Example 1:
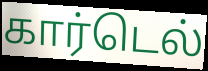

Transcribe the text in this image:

கார்டெல்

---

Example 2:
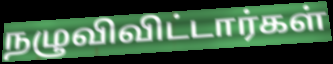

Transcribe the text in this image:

நழுவிவிட்டார்கள்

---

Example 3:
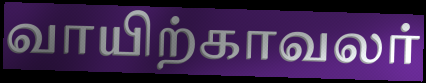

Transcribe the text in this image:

வாயிற்காவலர்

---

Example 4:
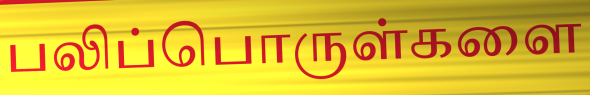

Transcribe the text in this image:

பலிப்பொருள்களை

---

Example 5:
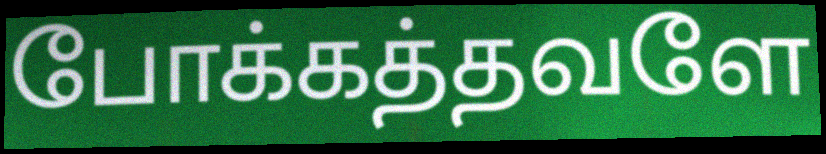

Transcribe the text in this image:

போக்கத்தவளே